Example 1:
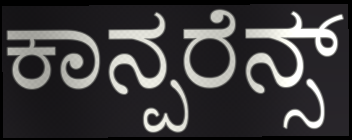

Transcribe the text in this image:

ಕಾನ್ಪರೆನ್ಸ್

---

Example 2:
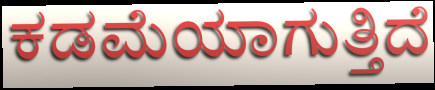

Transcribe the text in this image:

ಕಡಮೆಯಾಗುತ್ತಿದೆ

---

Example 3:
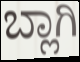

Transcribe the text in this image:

ಬ್ಲಾಗಿ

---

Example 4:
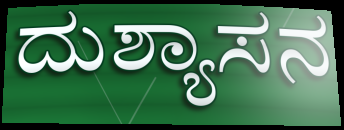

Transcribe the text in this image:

ದುಶ್ಯಾಸನ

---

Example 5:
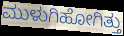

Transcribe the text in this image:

ಮುಳುಗಿಹೋಗಿತ್ತು